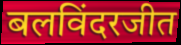
बलविंदरजीत